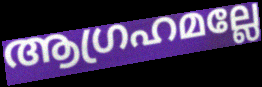
ആഗ്രഹമല്ലേ